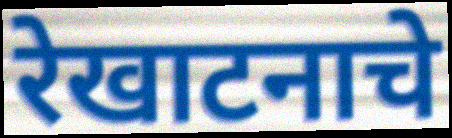
रेखाटनाचे